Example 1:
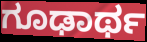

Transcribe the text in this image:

ಗೂಢಾರ್ಥ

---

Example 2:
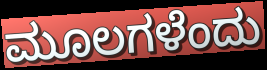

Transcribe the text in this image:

ಮೂಲಗಳೆಂದು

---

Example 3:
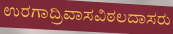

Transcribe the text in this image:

ಉರಗಾದ್ರಿವಾಸವಿಠಲದಾಸರು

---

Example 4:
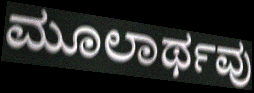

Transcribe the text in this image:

ಮೂಲಾರ್ಥವು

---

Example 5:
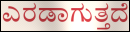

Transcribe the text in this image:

ಎರಡಾಗುತ್ತದೆ